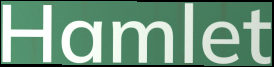
Hamlet